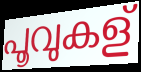
പൂവുകള്